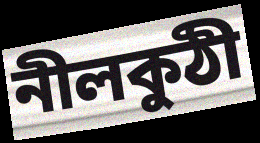
নীলকুঠী